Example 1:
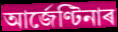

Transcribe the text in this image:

আৰ্জেণ্টিনাৰ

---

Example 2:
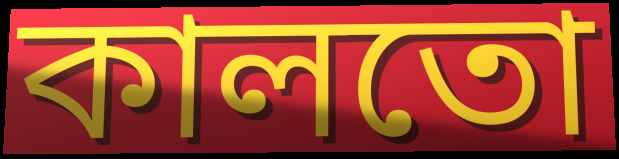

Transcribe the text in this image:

কালতো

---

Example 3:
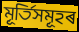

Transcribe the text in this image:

মূৰ্তিসমূহৰ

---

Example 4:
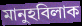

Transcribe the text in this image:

মানুহবিলাক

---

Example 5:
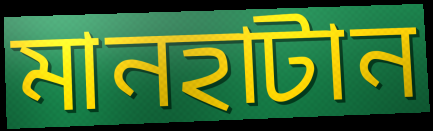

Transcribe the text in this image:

মানহাটান